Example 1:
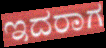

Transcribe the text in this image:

ಇದರಾಗ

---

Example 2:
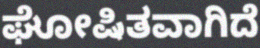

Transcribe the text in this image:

ಘೋಷಿತವಾಗಿದೆ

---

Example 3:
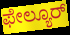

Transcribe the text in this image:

ಫೇಲ್ಯೂರ್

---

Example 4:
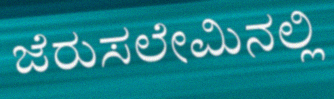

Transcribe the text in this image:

ಜೆರುಸಲೇಮಿನಲ್ಲಿ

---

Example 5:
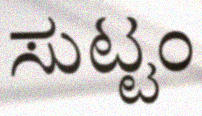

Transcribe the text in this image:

ಸುಟ್ಟಂ